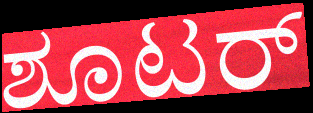
ಶೂಟರ್